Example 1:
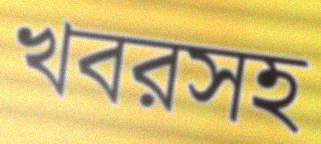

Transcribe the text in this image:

খবরসহ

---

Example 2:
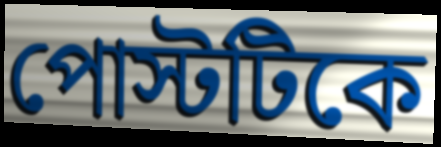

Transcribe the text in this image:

পোস্টটিকে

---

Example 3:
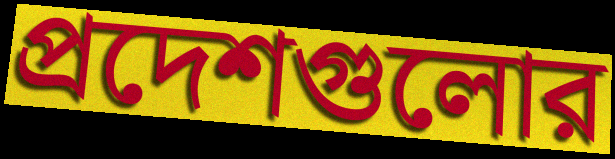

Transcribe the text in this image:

প্রদেশগুলোর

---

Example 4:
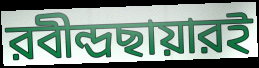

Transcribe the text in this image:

রবীন্দ্রছায়ারই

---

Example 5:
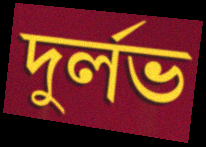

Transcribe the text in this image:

দুর্লভ